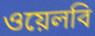
ওয়েলবি